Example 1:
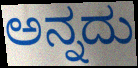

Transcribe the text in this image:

ಅನ್ನದು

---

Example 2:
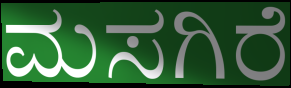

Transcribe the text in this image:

ಮಸಗಿರೆ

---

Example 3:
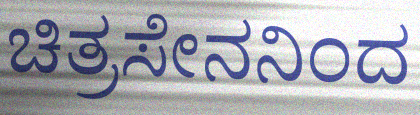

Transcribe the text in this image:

ಚಿತ್ರಸೇನನಿಂದ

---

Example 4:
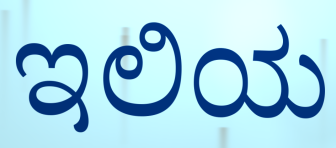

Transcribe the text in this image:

ಇಲಿಯ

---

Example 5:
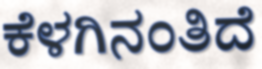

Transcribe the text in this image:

ಕೆಳಗಿನಂತಿದೆ